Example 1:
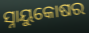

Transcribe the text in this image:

ସ୍ନାୟୁକୋଷର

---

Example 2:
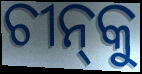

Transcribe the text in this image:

ଚୀନ୍‌କୁ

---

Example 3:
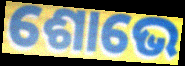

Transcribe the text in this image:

ଶୋଭେ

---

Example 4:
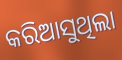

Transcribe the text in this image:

କରିଆସୁଥିଲା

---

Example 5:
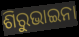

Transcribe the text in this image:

ଶିରୁଭାଇନା